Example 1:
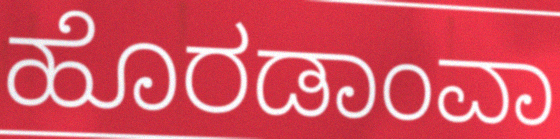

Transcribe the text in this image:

ಹೊರಡಾಂವಾ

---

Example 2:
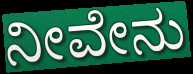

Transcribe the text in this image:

ನೀವೇನು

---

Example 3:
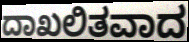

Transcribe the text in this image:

ದಾಖಲಿತವಾದ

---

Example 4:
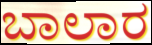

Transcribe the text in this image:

ಬಾಲಾರ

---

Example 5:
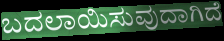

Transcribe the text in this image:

ಬದಲಾಯಿಸುವುದಾಗಿದೆ